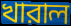
খারাল